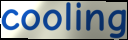
cooling